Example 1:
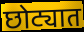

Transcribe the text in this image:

छोट्यात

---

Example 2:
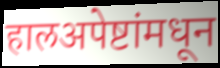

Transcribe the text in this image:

हालअपेष्टांमधून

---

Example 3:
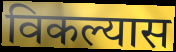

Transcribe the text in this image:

विकल्यास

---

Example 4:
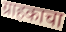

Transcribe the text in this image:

ग्राहकाचा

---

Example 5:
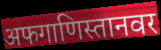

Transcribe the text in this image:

अफगाणिस्तानवर